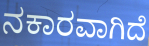
ನಕಾರವಾಗಿದೆ